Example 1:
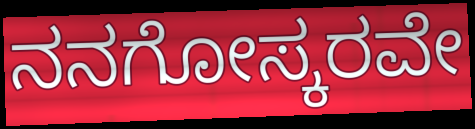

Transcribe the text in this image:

ನನಗೋಸ್ಕರವೇ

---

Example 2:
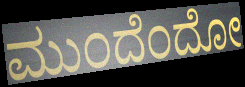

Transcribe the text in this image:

ಮುಂದೆಂದೋ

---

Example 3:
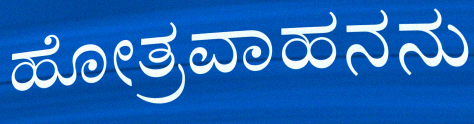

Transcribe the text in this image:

ಹೋತ್ರವಾಹನನು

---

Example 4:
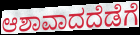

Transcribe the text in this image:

ಆಶಾವಾದದೆಡೆಗೆ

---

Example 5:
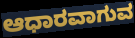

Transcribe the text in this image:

ಆಧಾರವಾಗುವ